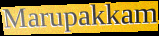
Marupakkam